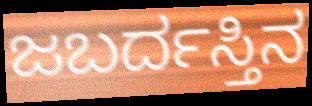
ಜಬರ್ದಸ್ತಿನ